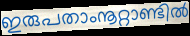
ഇരുപതാംനൂറ്റാണ്ടിൽ